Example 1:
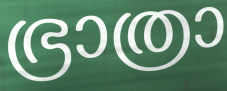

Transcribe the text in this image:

ഭ്രാത്രാ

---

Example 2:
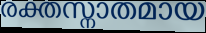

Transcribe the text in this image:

രക്തസ്നാതമായ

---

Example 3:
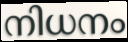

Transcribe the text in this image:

നിധനം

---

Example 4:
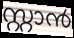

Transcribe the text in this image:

സ്റ്റാൻ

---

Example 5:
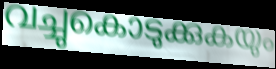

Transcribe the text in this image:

വച്ചുകൊടുക്കുകയും